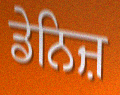
ਡੇਨਿਜ਼